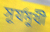
সূর্যমুখী